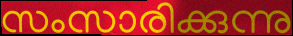
സംസാരിക്കുന്നു